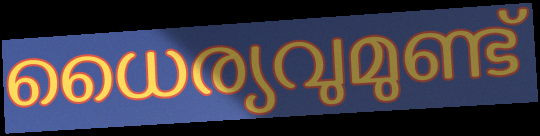
ധൈര്യവുമുണ്ട്